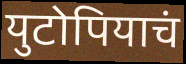
युटोपियाचं